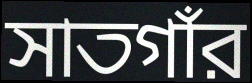
সাতগাঁর